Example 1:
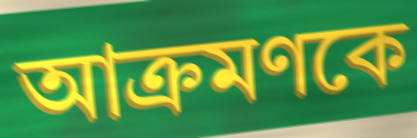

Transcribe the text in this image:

আক্রমণকে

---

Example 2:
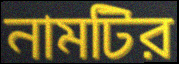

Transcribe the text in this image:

নামটির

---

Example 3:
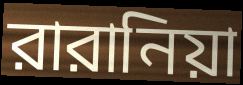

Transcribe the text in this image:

রারানিয়া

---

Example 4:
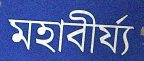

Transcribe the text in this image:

মহাবীর্য্য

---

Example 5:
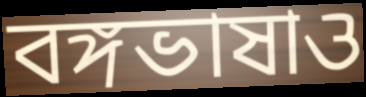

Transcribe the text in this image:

বঙ্গভাষাও